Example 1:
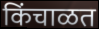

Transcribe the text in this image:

किंचाळत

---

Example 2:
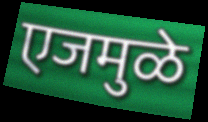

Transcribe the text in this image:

एजमुळे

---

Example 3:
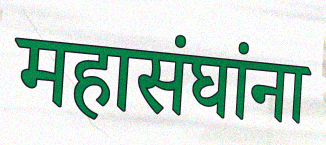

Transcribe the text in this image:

महासंघांना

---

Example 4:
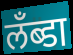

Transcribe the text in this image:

लँब्डा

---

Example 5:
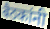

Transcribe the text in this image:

बैठकांनी